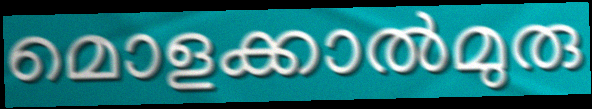
മൊളക്കാൽമുരു